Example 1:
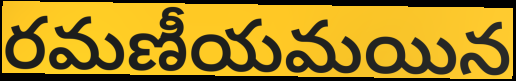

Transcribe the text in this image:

రమణీయమయిన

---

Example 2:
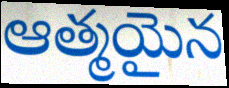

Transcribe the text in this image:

ఆత్మయైన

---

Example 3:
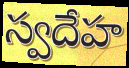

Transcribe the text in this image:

స్వదేహ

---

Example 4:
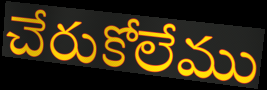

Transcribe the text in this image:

చేరుకోలేము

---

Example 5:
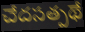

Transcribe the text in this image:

చేదసత్పథే